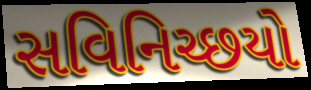
સવિનિચ્છયો